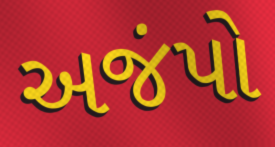
અજંપો